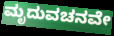
ಮೃದುವಚನವೇ